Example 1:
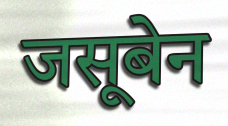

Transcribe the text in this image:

जसूबेन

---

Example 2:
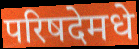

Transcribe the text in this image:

परिषदेमधे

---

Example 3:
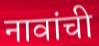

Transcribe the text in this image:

नावांची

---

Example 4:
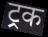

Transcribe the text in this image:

ट्रक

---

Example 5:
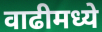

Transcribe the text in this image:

वाढीमध्ये